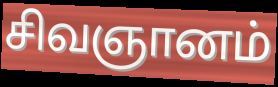
சிவஞானம்